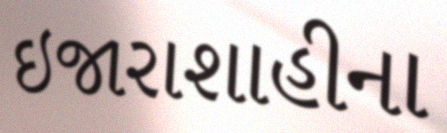
ઇજારાશાહીના